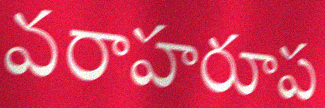
వరాహరూప